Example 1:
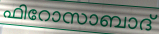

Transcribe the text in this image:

ഫിറോസാബാദ്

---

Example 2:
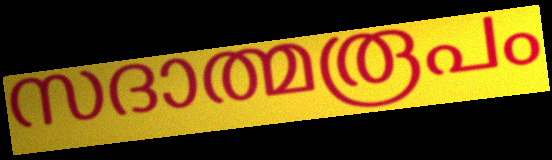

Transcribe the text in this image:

സദാത്മരൂപം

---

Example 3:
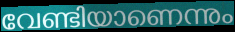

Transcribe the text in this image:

വേണ്ടിയാണെന്നും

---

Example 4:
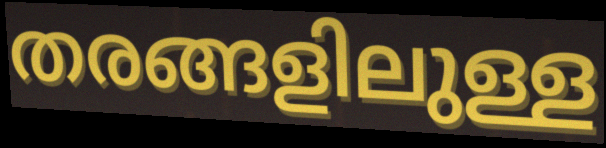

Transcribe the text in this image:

തരങ്ങളിലുള്ള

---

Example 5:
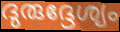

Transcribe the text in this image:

ദുരുദ്ദേശ്യം